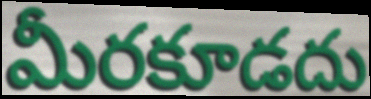
మీరకూడదు